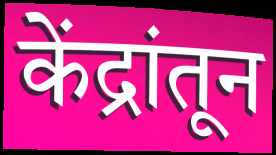
केंद्रांतून